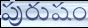
పురుషం